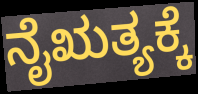
ನೈಋತ್ಯಕ್ಕೆ